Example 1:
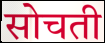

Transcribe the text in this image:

सोचती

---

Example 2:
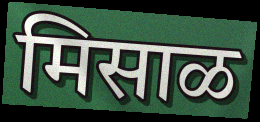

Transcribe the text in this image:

मिसाळ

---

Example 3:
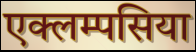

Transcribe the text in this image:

एक्लम्पसिया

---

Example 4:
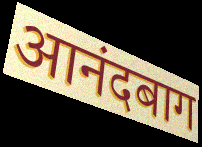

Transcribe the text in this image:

आनंदबाग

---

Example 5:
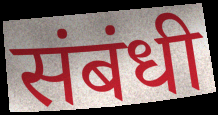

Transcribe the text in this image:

संबंधी